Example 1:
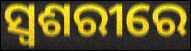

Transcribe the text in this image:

ସ୍ୱଶରୀରେ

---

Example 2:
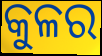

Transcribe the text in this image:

କୁଳର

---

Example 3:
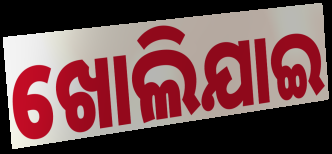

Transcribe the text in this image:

ଖୋଲିଯାଇ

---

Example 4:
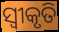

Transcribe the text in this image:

ସ୍ବୀକୃତି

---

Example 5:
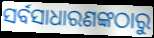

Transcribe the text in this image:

ସର୍ବସାଧାରଣଙ୍କଠାରୁ